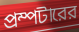
প্রম্পটারের